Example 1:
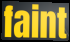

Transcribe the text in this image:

faint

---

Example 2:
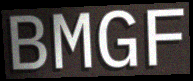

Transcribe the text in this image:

BMGF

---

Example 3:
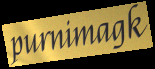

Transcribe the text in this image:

purnimagk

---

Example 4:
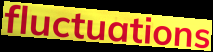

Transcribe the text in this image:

fluctuations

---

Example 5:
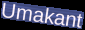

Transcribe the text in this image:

Umakant